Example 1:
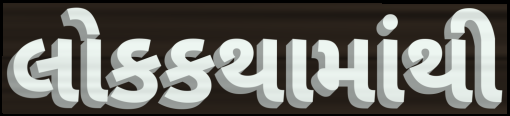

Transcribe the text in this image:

લોકકથામાંથી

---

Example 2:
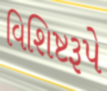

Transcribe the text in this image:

વિશિષ્ટરૂપે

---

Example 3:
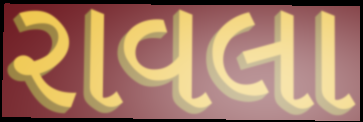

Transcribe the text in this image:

રાવલા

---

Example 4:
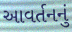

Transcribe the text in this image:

આવર્તનનું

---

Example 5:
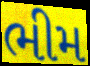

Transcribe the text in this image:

ભીમ